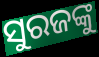
ସୁରଜଙ୍କୁ